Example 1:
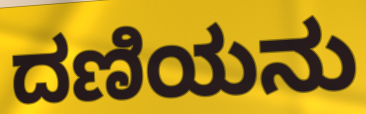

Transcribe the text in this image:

ದಣಿಯನು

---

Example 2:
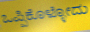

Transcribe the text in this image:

ಒಪ್ಪಿಕೊಳ್ಳೋದು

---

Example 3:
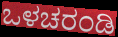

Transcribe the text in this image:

ಒಳಚರಂಡಿ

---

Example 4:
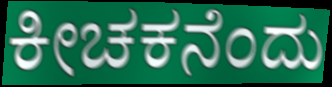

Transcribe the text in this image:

ಕೀಚಕನೆಂದು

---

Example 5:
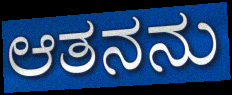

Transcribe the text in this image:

ಆತನನು